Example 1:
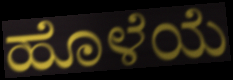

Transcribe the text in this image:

ಹೊಳೆಯೆ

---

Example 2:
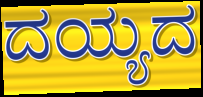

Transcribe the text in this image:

ದಯ್ಯದ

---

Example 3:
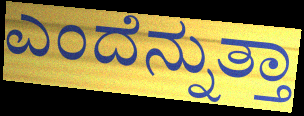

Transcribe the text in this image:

ಎಂದೆನ್ನುತ್ತಾ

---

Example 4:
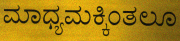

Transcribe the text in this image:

ಮಾಧ್ಯಮಕ್ಕಿಂತಲೂ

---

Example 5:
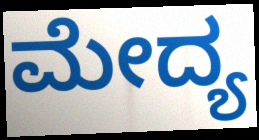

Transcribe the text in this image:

ಮೇದ್ಯ